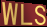
WLS